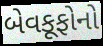
બેવકૂફોનો